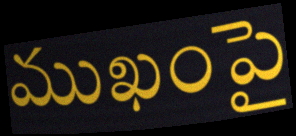
ముఖంపై